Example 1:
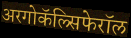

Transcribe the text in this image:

अरगोकॅल्सिफेरॉल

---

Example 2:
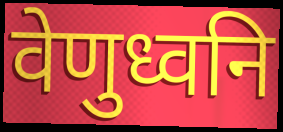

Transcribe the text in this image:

वेणुध्वनि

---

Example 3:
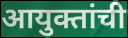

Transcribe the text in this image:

आयुक्तांची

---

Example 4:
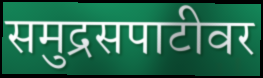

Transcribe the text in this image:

समुद्रसपाटीवर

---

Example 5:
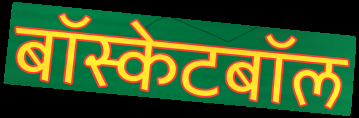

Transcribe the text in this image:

बॉस्केटबॉल